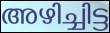
അഴിച്ചിട്ട